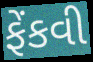
ફેંકવી